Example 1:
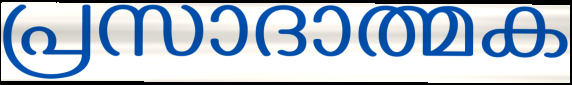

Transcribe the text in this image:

പ്രസാദാത്മക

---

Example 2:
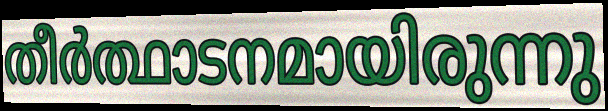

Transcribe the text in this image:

തീർത്ഥാടനമായിരുന്നു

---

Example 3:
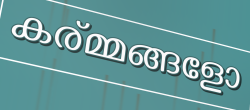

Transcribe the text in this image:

കര്മ്മങ്ങളോ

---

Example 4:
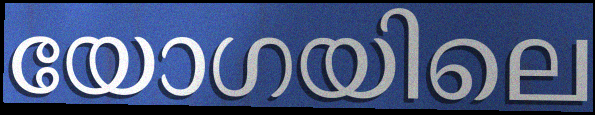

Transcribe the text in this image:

യോഗയിലെ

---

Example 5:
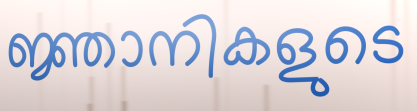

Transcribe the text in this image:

ജ്ഞാനികളുടെ